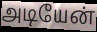
அடியேன்